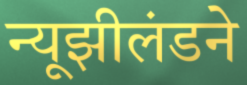
न्यूझीलंडने